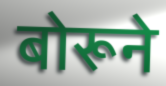
बोरूने